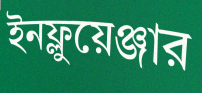
ইনফ্লুয়েঞ্জার